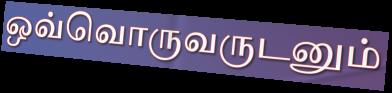
ஒவ்வொருவருடனும்